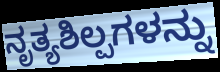
ನೃತ್ಯಶಿಲ್ಪಗಳನ್ನು